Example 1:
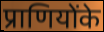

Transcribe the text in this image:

प्राणियोंके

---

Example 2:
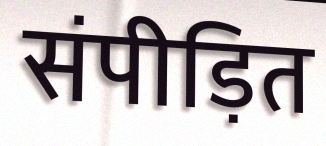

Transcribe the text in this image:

संपीड़ित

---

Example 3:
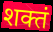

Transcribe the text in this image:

शक्तं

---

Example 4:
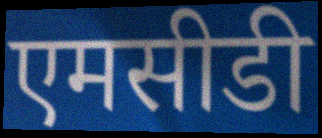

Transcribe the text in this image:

एमसीडी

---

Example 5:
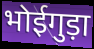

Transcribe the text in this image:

भोईगुड़ा